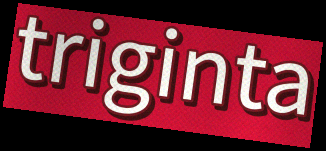
triginta